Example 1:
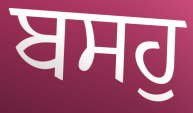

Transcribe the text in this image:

ਬਸਹੁ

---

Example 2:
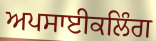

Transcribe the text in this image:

ਅਪਸਾਈਕਲਿੰਗ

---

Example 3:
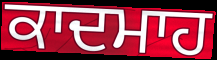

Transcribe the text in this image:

ਕਾਦਮਾਹ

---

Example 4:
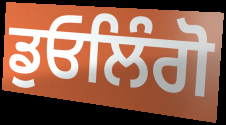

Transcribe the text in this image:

ਡੁਓਲਿੰਗੋ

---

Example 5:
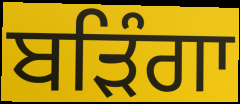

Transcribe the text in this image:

ਬੜਿੰਗਾ